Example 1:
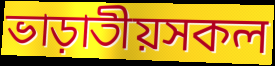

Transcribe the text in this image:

ভাড়াতীয়সকল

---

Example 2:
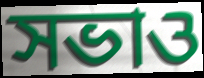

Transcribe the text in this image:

সভাও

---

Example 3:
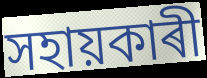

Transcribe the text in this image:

সহায়কাৰী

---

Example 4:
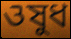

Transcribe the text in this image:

ওষুধ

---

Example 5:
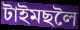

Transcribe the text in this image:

টাইমছলৈ